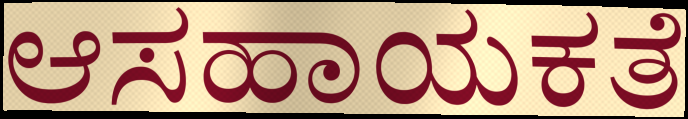
ಆಸಹಾಯಕತೆ